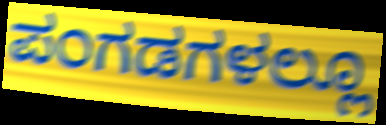
ಪಂಗಡಗಳಲ್ಲೂ